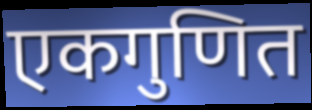
एकगुणित